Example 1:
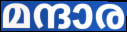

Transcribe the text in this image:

മന്ദാര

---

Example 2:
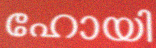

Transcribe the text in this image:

ഹോയി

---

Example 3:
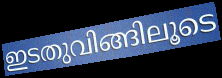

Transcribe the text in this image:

ഇടതുവിങ്ങിലൂടെ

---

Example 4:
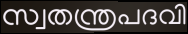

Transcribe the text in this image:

സ്വതന്ത്രപദവി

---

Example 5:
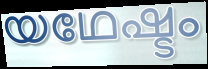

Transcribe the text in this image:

യഥേഷ്ടം